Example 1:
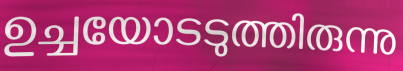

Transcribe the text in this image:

ഉച്ചയോടടുത്തിരുന്നു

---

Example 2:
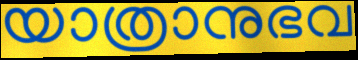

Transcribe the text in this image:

യാത്രാനുഭവ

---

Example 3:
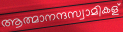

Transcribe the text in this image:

ആത്മാനന്ദസ്വാമികള്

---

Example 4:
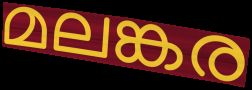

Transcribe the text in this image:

മലങ്കര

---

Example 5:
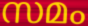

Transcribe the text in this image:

സമം